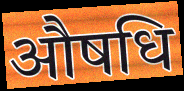
औषधि